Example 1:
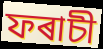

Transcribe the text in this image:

ফৰাচী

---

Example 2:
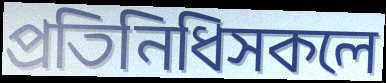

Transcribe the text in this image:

প্ৰতিনিধিসকলে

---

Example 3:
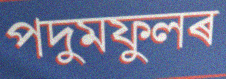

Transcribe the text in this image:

পদুমফুলৰ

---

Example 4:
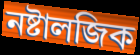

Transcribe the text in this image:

নষ্টালজিক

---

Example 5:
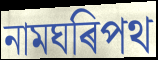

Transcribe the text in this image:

নামঘৰিপথ